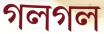
গলগল